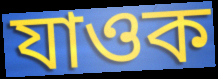
যাওক